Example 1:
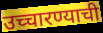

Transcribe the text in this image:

उच्चारण्याची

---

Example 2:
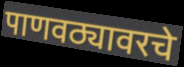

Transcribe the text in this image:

पाणवठ्यावरचे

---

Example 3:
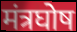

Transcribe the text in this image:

मंत्रघोष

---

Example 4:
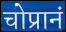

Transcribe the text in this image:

चोप्रानं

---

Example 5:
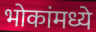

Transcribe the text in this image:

भोकांमध्ये